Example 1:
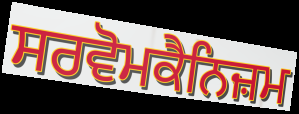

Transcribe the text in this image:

ਸਰਵੋਮਕੈਨਿਜ਼ਮ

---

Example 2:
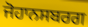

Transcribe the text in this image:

ਜੋਹਾਨਸਬਰਗ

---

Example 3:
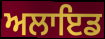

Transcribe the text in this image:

ਅਲਾਇਡ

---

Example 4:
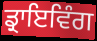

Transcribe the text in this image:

ਡ੍ਰਾਇਵਿੰਗ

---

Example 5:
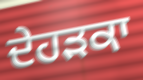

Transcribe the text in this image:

ਦੇਹੜਕਾ